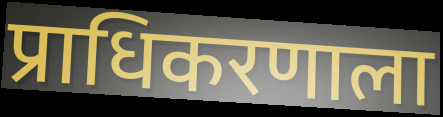
प्राधिकरणाला